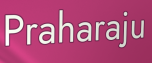
Praharaju